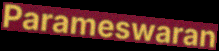
Parameswaran